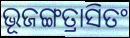
ଭୂଜଙ୍ଗତ୍ରାସିତଂ